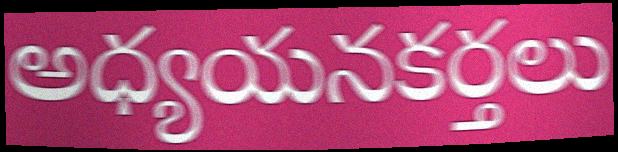
అధ్యయనకర్తలు